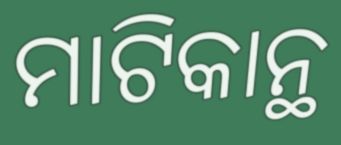
ମାଟିକାନ୍ଥ